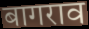
बागराव